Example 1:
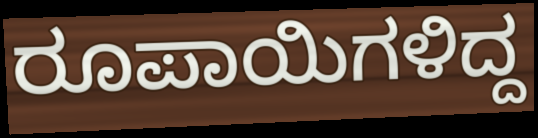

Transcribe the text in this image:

ರೂಪಾಯಿಗಳಿದ್ದ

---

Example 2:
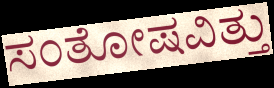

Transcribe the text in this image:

ಸಂತೋಷವಿತ್ತು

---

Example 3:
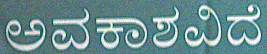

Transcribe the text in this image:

ಅವಕಾಶವಿದೆ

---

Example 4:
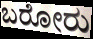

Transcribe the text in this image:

ಬರೋರು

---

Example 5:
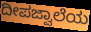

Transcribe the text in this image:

ದೀಪಜ್ವಾಲೆಯ